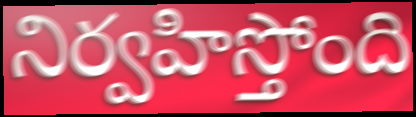
నిర్వహిస్తోంది